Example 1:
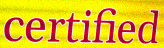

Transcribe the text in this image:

certified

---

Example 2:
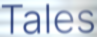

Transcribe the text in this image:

Tales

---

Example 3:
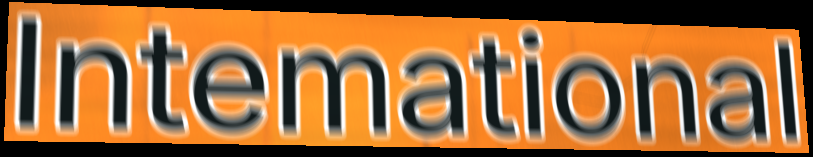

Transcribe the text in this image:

Intemational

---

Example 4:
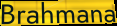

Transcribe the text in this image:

Brahmana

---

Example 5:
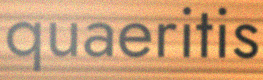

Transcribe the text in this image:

quaeritis